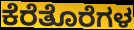
ಕೆರೆತೊರೆಗಳ